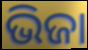
ଭିଜା